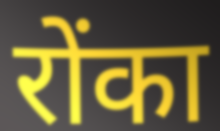
रोंका